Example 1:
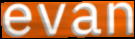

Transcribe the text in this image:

evan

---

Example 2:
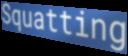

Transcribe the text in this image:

Squatting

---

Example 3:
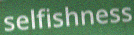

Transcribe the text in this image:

selfishness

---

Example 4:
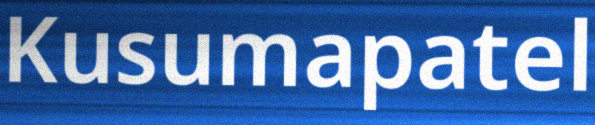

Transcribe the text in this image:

Kusumapatel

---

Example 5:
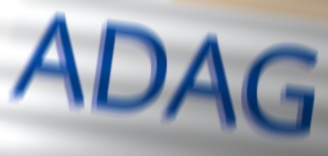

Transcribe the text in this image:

ADAG